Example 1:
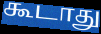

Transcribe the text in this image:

கூடாது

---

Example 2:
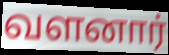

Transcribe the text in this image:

வளனார்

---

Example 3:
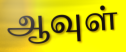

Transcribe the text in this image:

ஆவுள்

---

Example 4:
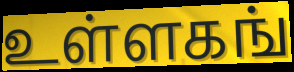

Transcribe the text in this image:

உள்ளகங்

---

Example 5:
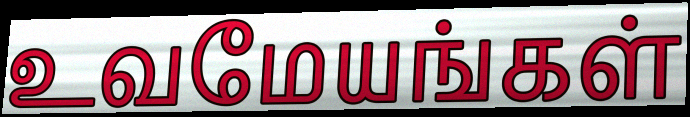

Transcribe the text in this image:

உவமேயங்கள்